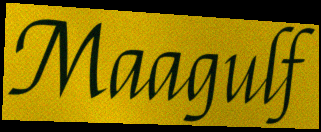
Maagulf